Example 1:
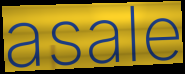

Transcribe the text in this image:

asale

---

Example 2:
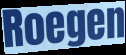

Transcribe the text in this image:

Roegen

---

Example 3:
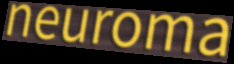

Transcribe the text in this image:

neuroma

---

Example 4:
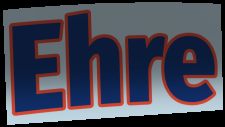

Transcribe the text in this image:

Ehre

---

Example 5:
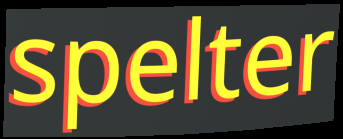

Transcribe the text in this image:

spelter